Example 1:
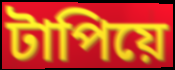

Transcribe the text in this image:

টাপিয়ে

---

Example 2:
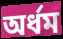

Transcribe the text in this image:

অর্ধম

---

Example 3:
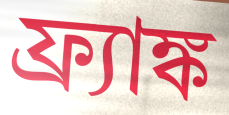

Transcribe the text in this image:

ফ্র্যাঙ্ক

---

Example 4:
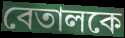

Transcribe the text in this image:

বেতালকে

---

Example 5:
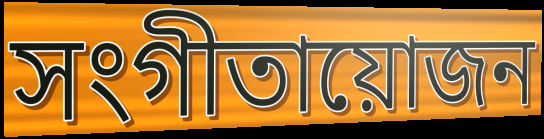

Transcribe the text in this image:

সংগীতায়োজন